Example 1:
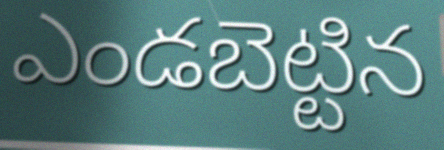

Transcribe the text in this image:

ఎండబెట్టిన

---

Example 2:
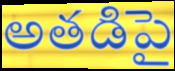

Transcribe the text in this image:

అతడిపై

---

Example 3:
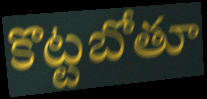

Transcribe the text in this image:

కొట్టబోతూ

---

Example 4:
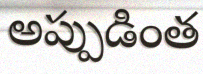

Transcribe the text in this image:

అప్పుడింత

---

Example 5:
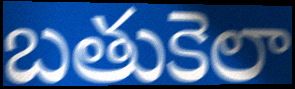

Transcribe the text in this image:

బతుకెలా